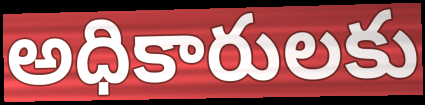
అధికారులకు